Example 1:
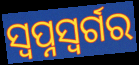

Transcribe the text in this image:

ସ୍ୱପ୍ନସ୍ୱର୍ଗର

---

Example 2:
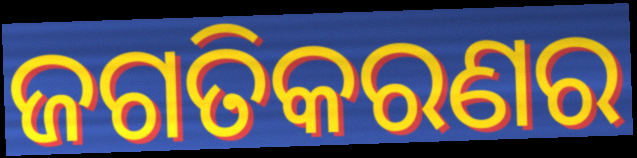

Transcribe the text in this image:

ଜଗତିକରଣର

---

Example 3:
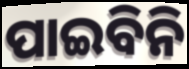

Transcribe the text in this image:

ପାଇବିନି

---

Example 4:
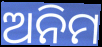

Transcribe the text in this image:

ଅନିମ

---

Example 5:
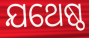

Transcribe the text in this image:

ଯଥେଷ୍ଠ